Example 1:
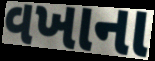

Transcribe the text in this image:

વખાના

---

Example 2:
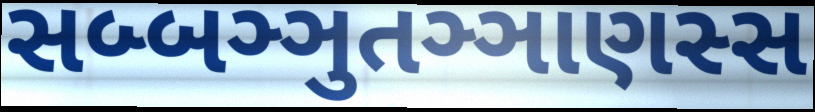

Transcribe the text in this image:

સબ્બઞ્ઞુતઞ્ઞાણસ્સ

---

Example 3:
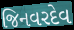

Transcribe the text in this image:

જિનવરદેવ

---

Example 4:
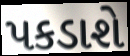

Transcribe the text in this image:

પકડાશે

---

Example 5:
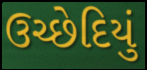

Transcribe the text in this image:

ઉચ્છેદિયું